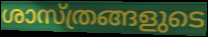
ശാസ്ത്രങ്ങളുടെ